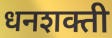
धनशक्ती